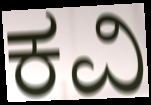
ಕವಿ